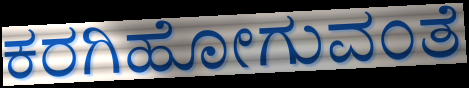
ಕರಗಿಹೋಗುವಂತೆ